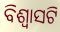
ବିଶ୍ୱାସଟି